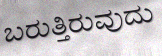
ಬರುತ್ತಿರುವುದು